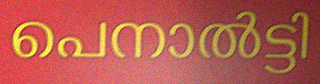
പെനാൽട്ടി